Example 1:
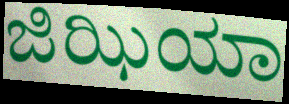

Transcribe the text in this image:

ಜಿಝಿಯಾ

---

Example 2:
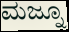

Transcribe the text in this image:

ಮಜ್ನೂ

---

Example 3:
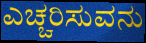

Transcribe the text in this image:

ಎಚ್ಚರಿಸುವನು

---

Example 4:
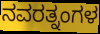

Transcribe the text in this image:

ನವರತ್ನಂಗಳ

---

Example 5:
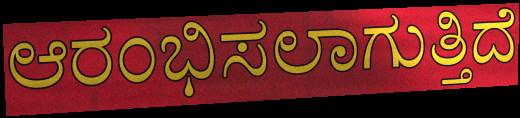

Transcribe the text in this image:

ಆರಂಭಿಸಲಾಗುತ್ತಿದೆ